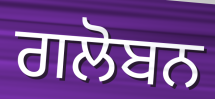
ਗਲੋਬਨ